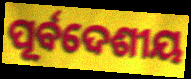
ପୂର୍ବଦେଶୀୟ